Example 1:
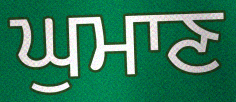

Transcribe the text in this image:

ਘੁਮਾਣ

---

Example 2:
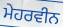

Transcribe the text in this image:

ਮੇਹਰਵੀਨ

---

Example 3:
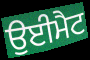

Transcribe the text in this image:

ਉਈਮੈਟ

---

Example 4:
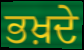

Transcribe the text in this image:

ਭਖ਼ਦੇ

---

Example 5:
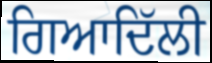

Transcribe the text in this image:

ਗਿਆਦਿੱਲੀ